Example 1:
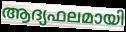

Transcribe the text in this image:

ആദ്യഫലമായി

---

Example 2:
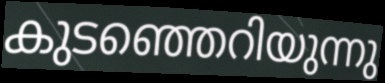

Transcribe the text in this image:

കുടഞ്ഞെറിയുന്നു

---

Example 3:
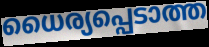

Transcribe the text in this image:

ധൈര്യപ്പെടാത്ത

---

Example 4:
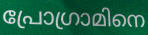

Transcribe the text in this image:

പ്രോഗ്രാമിനെ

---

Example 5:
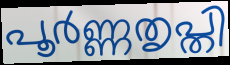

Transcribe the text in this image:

പൂർണ്ണതൃപ്തി